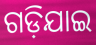
ଗଡ଼ିଯାଇ